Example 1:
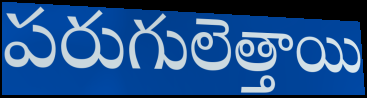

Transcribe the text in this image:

పరుగులెత్తాయి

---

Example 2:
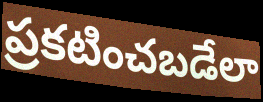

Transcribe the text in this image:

ప్రకటించబడేలా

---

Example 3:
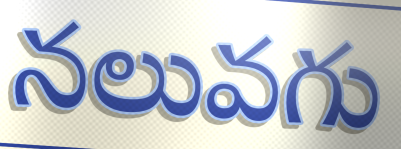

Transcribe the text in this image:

నలువగు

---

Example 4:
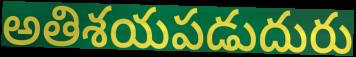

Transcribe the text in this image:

అతిశయపడుదురు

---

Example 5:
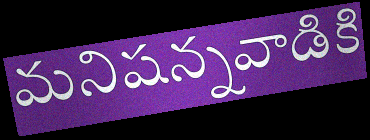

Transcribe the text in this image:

మనిషన్నవాడికి